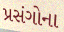
પ્રસંગોના